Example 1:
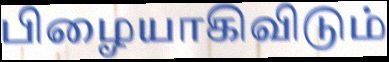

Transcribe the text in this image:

பிழையாகிவிடும்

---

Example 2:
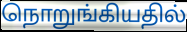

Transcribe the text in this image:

நொறுங்கியதில்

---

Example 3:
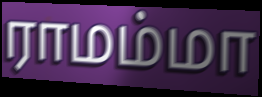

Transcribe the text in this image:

ராமம்மா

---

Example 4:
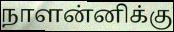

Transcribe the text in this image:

நாளன்னிக்கு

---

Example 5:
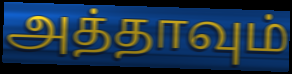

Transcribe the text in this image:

அத்தாவும்